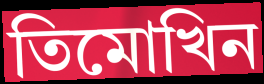
তিমোখিন